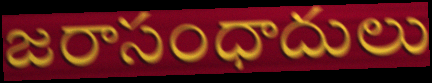
జరాసంధాదులు